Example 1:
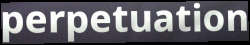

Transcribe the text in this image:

perpetuation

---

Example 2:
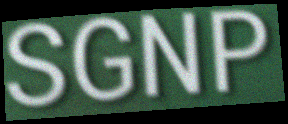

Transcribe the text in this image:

SGNP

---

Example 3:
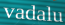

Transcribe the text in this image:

vadalu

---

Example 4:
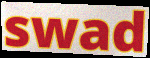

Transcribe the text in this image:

swad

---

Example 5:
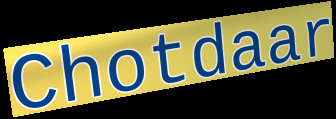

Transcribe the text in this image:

Chotdaar